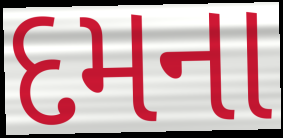
દમના